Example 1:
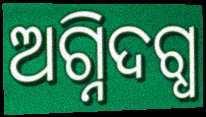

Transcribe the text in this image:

ଅଗ୍ନିଦଗ୍ଧ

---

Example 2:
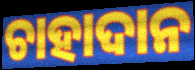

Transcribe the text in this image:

ଚାହାଦାନ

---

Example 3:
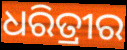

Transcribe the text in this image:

ଧରିତ୍ରୀର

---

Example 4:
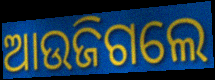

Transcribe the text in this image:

ଆଉଜିଗଲେ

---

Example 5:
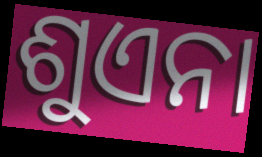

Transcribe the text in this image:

ଶୁଏନା